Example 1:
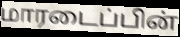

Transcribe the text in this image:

மாரடைப்பின்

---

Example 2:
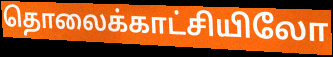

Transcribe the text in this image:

தொலைக்காட்சியிலோ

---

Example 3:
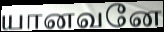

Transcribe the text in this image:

யானவனே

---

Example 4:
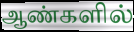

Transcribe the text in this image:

ஆண்களில்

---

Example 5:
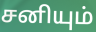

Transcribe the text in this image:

சனியும்